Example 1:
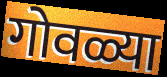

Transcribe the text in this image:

गोवळ्या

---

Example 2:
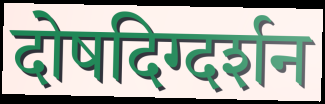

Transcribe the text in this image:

दोषदिग्दर्शन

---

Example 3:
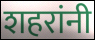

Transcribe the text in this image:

शहरांनी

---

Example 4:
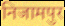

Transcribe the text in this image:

निजामपुर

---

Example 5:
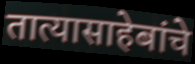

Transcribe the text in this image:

तात्यासाहेबांचे